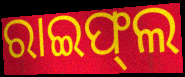
ରାଇଫ୍‌ଲ